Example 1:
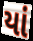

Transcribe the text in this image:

યાં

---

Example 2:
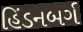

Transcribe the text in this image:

હિંડનબર્ગ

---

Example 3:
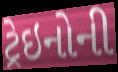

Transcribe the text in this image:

ટ્રેઇનોની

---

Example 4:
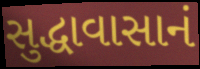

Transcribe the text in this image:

સુદ્ધાવાસાનં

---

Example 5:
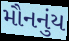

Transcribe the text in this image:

મૌનનુંય